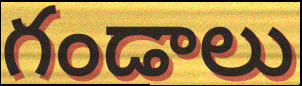
గండాలు